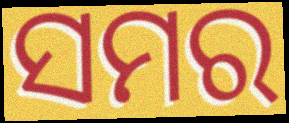
ସମର